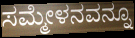
ಸಮ್ಮೇಳನವನ್ನೂ